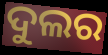
ଦୁଲର